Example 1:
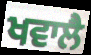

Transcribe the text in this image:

ਖਵਾਲੈ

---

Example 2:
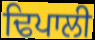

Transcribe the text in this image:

ਢਿਪਾਲੀ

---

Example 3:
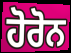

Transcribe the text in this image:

ਹੋਰੋਨ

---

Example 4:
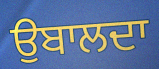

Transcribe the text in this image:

ਉਬਾਲਦਾ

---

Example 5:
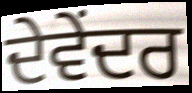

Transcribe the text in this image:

ਦੇਵੇਂਦਰ